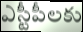
ఎస్టీపీలకు